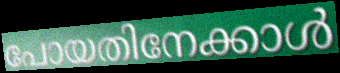
പോയതിനേക്കാൾ